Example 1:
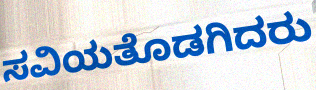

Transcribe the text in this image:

ಸವಿಯತೊಡಗಿದರು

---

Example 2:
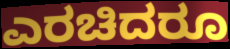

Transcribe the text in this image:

ಎರಚಿದರೂ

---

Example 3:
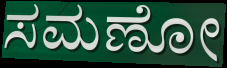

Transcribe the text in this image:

ಸಮಣೋ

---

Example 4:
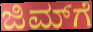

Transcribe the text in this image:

ಜಿಮ್‌ಗೆ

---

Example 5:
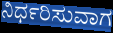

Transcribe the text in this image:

ನಿರ್ಧರಿಸುವಾಗ